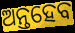
ଅନ୍ତହେବ